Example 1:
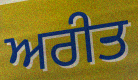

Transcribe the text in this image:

ਅਰੀਤ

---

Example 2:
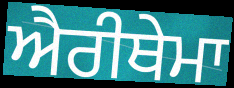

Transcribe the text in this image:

ਐਰੀਥੇਮਾ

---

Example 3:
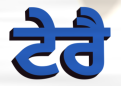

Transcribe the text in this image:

ਟੇਰੈ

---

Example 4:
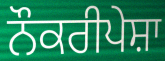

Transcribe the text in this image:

ਨੌਕਰੀਪੇਸ਼ਾ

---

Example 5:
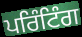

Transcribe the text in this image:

ਪਰਿੰਟਿੰਗ